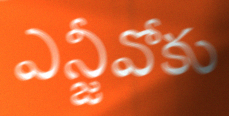
ఎన్జీవోకు